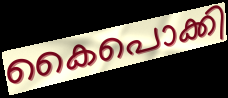
കൈപൊക്കി